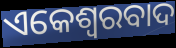
ଏକେଶ୍ୱରବାଦ